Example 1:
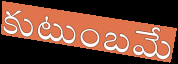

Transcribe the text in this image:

కుటుంబమే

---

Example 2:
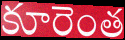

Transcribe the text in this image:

కూరెంత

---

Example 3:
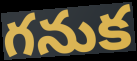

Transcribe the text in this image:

గనుక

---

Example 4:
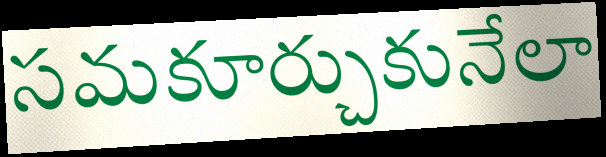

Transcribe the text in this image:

సమకూర్చుకునేలా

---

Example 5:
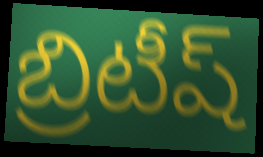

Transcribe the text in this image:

బ్రిటీష్